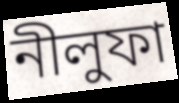
নীলুফা